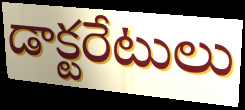
డాక్టరేటులు